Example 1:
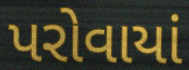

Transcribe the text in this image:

પરોવાયાં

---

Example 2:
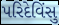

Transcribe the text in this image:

પરિદેવિંસુ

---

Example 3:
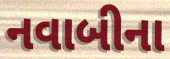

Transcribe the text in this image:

નવાબીના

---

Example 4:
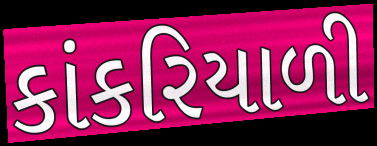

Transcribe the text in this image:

કાંકરિયાળી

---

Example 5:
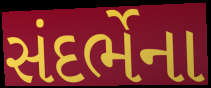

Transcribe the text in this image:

સંદર્ભેના